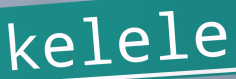
kelele